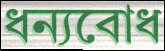
ধন্যবোধ